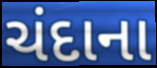
ચંદાના